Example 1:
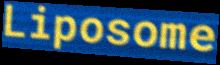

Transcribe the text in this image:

Liposome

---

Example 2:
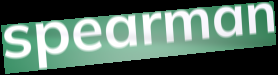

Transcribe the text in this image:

spearman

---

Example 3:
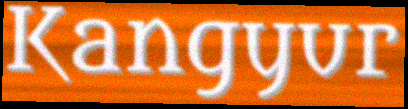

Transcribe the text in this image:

Kangyur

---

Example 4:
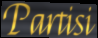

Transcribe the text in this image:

Partisi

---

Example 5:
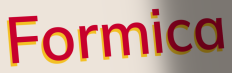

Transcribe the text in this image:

Formica